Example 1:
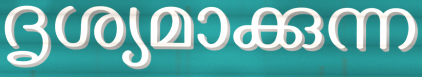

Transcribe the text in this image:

ദൃശ്യമാക്കുന്ന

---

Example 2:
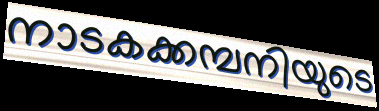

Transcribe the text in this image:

നാടകക്കമ്പനിയുടെ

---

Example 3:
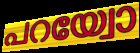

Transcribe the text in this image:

പറയ്വോ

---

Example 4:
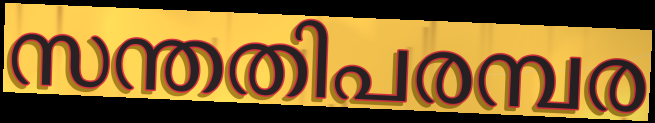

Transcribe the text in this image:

സന്തതിപരമ്പര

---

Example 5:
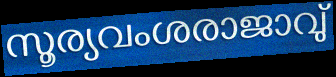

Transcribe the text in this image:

സൂര്യവംശരാജാവു്